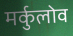
मर्कुलोव